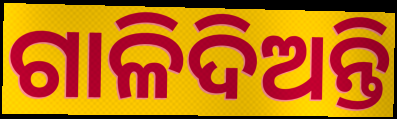
ଗାଳିଦିଅନ୍ତି